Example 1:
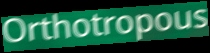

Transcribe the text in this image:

Orthotropous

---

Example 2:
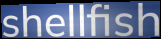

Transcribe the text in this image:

shellfish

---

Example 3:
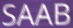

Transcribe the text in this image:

SAAB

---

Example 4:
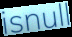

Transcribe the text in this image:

isnull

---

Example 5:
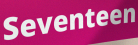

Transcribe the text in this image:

Seventeen